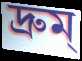
দ্রুম্